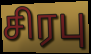
சிரபு